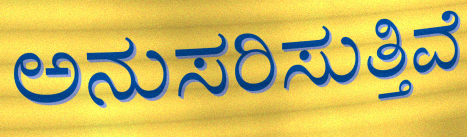
ಅನುಸರಿಸುತ್ತಿವೆ